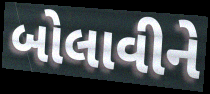
બોલાવીને